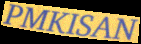
PMKISAN